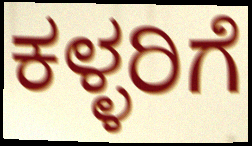
ಕಳ್ಳರಿಗೆ